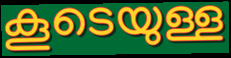
കൂടെയുള്ള